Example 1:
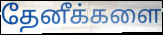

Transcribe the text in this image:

தேனீக்களை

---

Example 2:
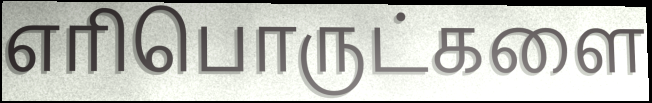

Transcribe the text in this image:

எரிபொருட்களை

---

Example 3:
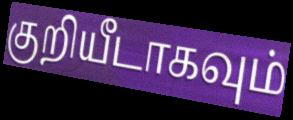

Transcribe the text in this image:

குறியீடாகவும்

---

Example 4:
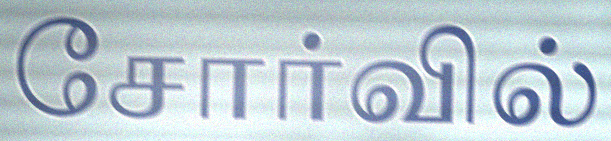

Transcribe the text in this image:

சோர்வில்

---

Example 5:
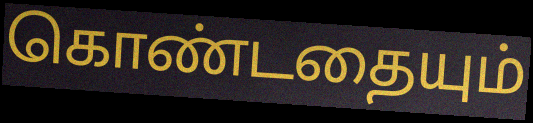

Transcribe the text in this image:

கொண்டதையும்